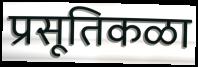
प्रसूतिकळा